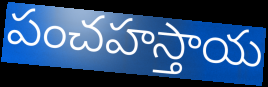
పంచహస్తాయ